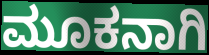
ಮೂಕನಾಗಿ